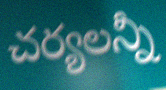
చర్యలన్నీ